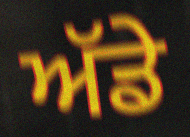
ਅੱਡੇ